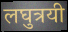
लघुत्रयी